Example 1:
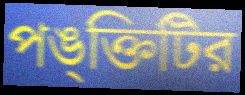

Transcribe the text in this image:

পঙ্‌ক্তিটির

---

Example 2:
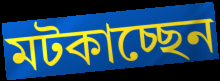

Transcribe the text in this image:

মটকাচ্ছেন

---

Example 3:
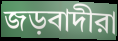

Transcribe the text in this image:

জড়বাদীরা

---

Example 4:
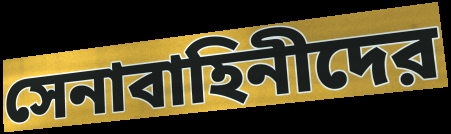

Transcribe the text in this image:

সেনাবাহিনীদের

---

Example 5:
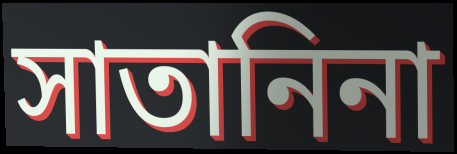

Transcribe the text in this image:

সাতানিনা